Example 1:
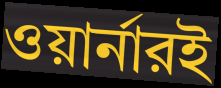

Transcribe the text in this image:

ওয়ার্নারই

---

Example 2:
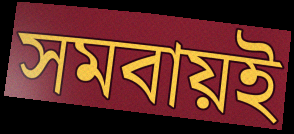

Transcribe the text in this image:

সমবায়ই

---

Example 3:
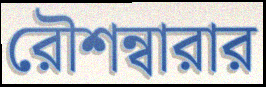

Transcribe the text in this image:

রৌশন্বারার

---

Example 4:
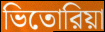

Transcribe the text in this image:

ভিতোরিয়া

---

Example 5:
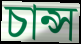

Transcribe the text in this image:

চান্স